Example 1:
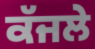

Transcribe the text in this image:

ਕੱਜਲੇ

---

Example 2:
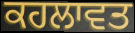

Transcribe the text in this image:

ਕਹਲਾਵਤ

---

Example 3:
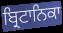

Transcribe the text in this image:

ਬ੍ਰਿਟਾਨਿਕਾ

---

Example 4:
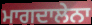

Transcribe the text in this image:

ਮਾਗਦਾਲੇਨਾ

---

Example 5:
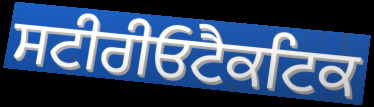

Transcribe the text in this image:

ਸਟੀਰੀਓਟੈਕਟਿਕ